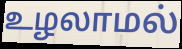
உழலாமல்